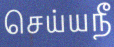
செய்யநீ